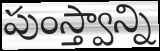
పుంస్త్వాన్ని